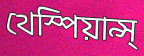
থেস্পিয়ান্স্